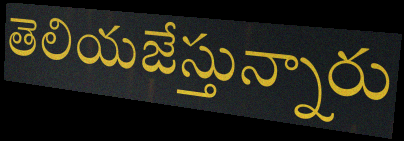
తెలియజేస్తున్నారు